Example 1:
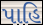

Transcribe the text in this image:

પાહિ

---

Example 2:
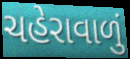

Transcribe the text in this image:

ચહેરાવાળું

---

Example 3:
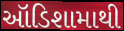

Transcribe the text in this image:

ઑડિશામાથી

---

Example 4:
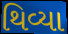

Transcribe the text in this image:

થિવ્યા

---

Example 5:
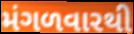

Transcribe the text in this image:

મંગળવારથી